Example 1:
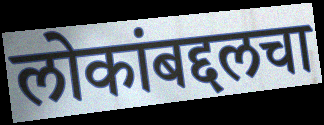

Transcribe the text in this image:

लोकांबद्दलचा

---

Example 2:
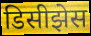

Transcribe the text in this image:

डिसीझेस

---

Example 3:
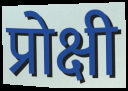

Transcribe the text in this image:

प्रोक्षी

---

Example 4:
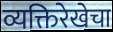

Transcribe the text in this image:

व्यक्तिरेखेचा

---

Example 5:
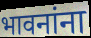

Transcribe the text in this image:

भावनांना